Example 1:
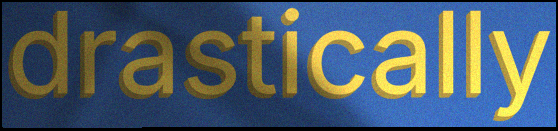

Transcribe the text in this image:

drastically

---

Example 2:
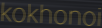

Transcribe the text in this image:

kokhonoi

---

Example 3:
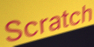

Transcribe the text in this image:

Scratch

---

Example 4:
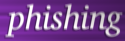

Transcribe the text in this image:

phishing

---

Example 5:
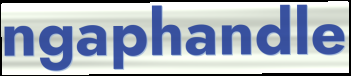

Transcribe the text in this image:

ngaphandle